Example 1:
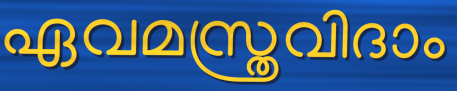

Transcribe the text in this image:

ഏവമസ്ത്രവിദാം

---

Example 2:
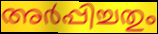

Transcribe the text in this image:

അർപ്പിച്ചതും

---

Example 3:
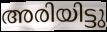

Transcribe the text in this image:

അരിയിട്ടു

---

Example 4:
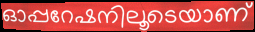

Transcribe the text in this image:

ഓപ്പറേഷനിലൂടെയാണ്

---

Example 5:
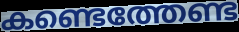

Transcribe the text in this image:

കണ്ടെത്തേണ്ട